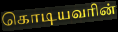
கொடியவரின்